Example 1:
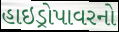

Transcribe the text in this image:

હાઇડ્રોપાવરનો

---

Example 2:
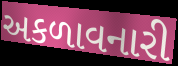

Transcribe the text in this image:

અકળાવનારી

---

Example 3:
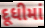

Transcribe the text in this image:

દૂધીમાં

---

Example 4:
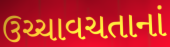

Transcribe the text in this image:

ઉચ્ચાવચતાનાં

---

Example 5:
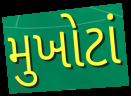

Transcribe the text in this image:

મુખોટાં